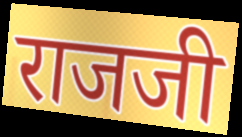
राजजी